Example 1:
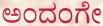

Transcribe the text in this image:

ಅಂದಂಗೇ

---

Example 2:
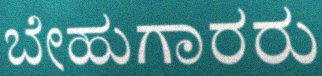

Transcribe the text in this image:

ಬೇಹುಗಾರರು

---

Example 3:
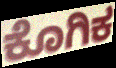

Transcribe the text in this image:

ಕೊಗಿಕ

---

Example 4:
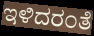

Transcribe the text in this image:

ಇಳಿದರಂತೆ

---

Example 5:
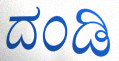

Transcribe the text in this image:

ದಂಡಿ